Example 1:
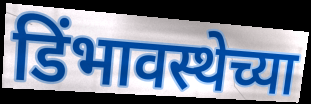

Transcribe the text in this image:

डिंभावस्थेच्या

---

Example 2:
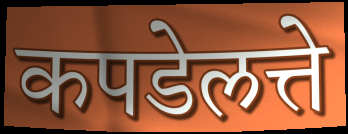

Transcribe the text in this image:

कपडेलत्ते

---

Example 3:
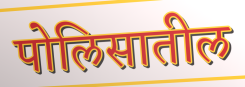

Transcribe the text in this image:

पोलिसातील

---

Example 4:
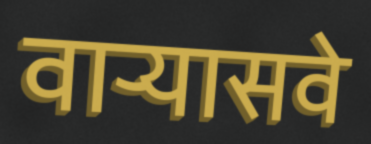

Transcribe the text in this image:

वाऱ्यासवे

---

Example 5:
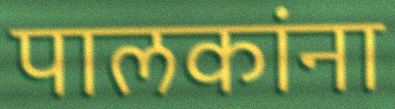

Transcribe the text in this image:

पालकांना